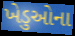
ખેડુઓના